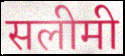
सलीमी